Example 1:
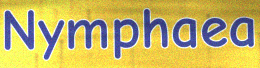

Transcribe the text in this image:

Nymphaea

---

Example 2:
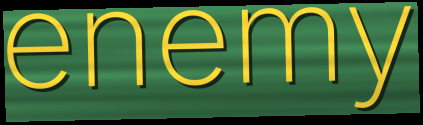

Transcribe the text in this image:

enemy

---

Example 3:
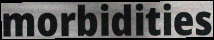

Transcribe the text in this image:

morbidities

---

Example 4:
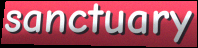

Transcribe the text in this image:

sanctuary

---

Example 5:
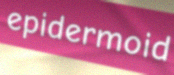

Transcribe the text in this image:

epidermoid